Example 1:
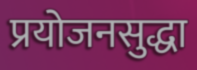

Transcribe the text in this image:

प्रयोजनसुद्धा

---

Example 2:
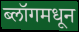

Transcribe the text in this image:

ब्लॉगमधून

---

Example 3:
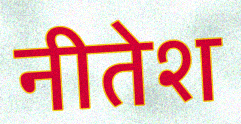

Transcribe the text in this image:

नीतेश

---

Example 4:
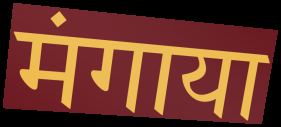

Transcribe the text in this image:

मंगाया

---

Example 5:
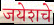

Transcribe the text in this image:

जयेशचे